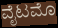
ವೈಟಮೊ